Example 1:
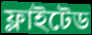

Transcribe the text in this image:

ফ্লাইটেড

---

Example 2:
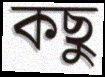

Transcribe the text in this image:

কছু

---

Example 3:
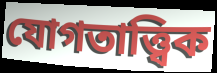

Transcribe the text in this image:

যোগতাত্ত্বিক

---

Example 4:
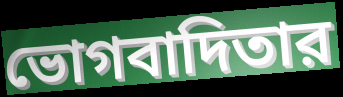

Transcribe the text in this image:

ভোগবাদিতার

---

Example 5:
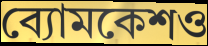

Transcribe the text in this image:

ব্যোমকেশও